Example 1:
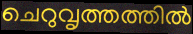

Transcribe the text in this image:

ചെറുവൃത്തത്തിൽ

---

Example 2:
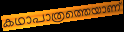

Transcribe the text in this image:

കഥാപാത്രത്തെയാണ്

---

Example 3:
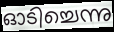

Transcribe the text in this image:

ഓടിച്ചെന്നു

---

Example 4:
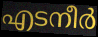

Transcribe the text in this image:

എടനീർ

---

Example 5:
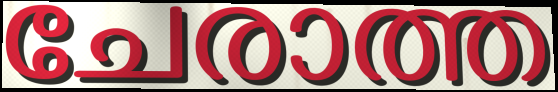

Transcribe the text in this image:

ചേരാത്ത